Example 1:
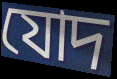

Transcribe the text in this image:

যোদ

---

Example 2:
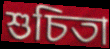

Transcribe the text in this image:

শুচিতা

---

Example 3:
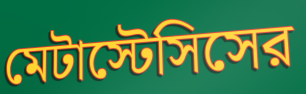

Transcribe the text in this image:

মেটাস্টেসিসের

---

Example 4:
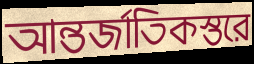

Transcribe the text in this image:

আন্তর্জাতিকস্তরে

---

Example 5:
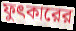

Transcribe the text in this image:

ফুৎকারের